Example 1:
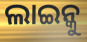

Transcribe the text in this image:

ଲାଇନ୍କୁ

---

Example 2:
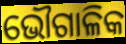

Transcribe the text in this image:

ଭୌଗାଳିକ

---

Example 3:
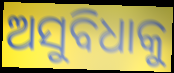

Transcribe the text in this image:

ଅସୁବିଧାକୁ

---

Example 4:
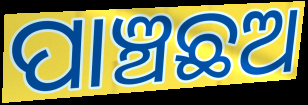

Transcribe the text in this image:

ପାଞ୍ଚଛଅ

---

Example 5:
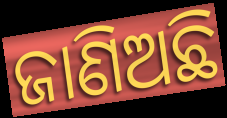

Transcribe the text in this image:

ଜାଣିଅଛି